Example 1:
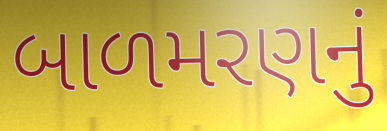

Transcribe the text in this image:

બાળમરણનું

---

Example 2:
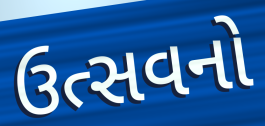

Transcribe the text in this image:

ઉત્સવનો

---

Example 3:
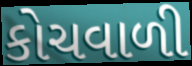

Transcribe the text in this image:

કોચવાળી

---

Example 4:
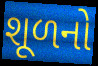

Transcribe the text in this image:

શૂળનો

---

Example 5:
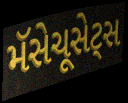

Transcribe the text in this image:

મૅસેચૂસેટ્સ